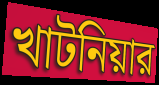
খাটনিয়ার